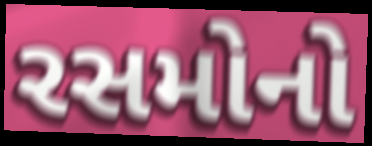
રસમોનો